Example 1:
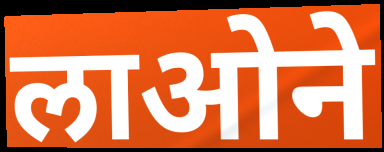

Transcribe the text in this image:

लाओने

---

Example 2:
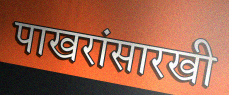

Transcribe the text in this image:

पाखरांसारखी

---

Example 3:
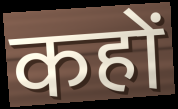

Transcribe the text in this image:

कहों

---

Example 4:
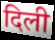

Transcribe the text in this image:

दिली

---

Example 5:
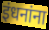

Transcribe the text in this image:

इंधनांना